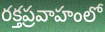
రక్తప్రవాహంలో